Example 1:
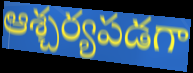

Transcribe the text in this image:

ఆశ్చర్యపడగా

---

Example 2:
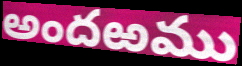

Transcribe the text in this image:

అందఱము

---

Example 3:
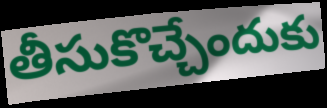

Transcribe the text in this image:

తీసుకొచ్చేందుకు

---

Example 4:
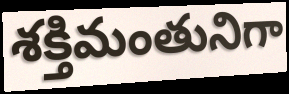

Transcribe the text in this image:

శక్తిమంతునిగా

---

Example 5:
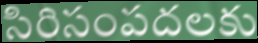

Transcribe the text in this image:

సిరిసంపదలకు